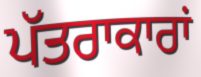
ਪੱਤਰਾਕਾਰਾਂ